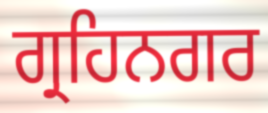
ਗ੍ਰਹਿਨਗਰ